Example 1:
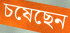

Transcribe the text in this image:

চষেছেন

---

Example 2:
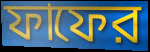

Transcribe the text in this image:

ফাফের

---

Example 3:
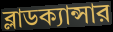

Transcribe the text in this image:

ব্লাডক্যান্সার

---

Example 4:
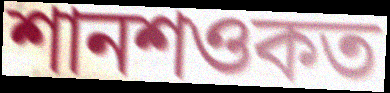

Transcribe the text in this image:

শানশওকত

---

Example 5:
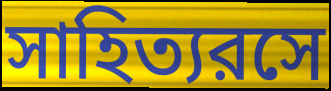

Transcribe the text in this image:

সাহিত্যরসে